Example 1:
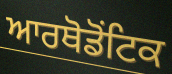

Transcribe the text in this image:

ਆਰਥੋਡੋਂਟਿਕ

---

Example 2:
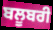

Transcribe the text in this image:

ਬਲੂਬਰੀ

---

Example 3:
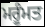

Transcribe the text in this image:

ਮਰੂੰਮਤ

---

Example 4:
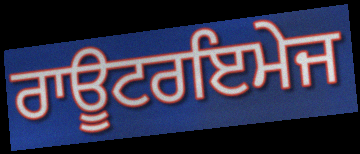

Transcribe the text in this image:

ਰਾਊਟਰਇਮੇਜ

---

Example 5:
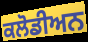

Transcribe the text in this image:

ਕਲੋਡੀਅਨ